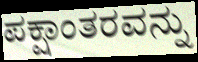
ಪಕ್ಷಾಂತರವನ್ನು